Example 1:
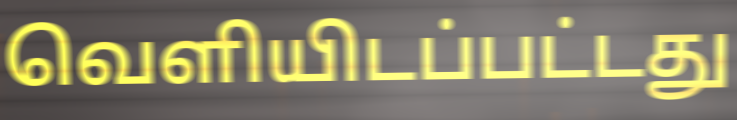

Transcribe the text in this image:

வெளியிடப்பட்டது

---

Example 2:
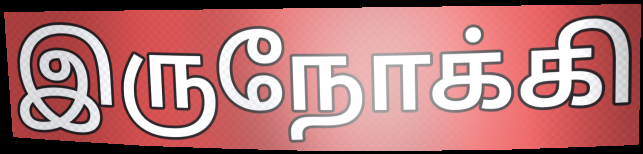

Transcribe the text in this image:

இருநோக்கி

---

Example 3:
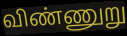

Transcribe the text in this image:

விண்ணுறு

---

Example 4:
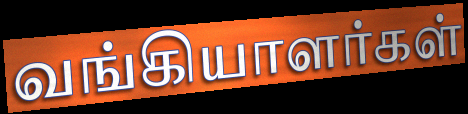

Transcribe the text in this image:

வங்கியாளர்கள்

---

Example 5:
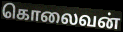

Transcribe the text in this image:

கொலைவன்